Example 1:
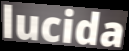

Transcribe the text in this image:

lucida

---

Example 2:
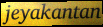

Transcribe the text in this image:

jeyakantan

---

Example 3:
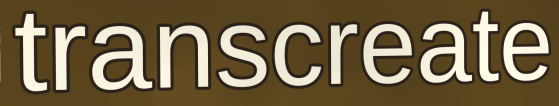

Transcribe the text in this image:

transcreate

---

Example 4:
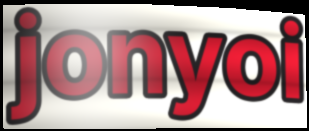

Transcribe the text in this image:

jonyoi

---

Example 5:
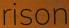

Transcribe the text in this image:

rison